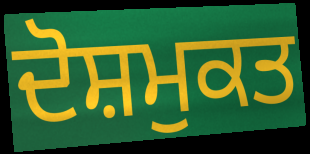
ਦੋਸ਼ਮੁਕਤ